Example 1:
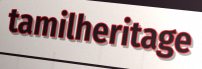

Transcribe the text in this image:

tamilheritage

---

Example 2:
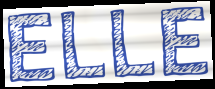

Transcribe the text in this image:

ELLE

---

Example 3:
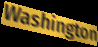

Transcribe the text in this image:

Washington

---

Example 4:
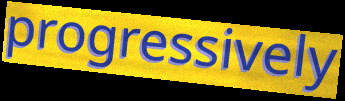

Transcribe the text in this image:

progressively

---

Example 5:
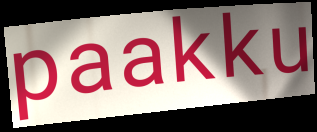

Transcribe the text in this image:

paakku